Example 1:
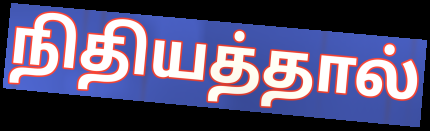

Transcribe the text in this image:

நிதியத்தால்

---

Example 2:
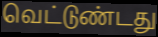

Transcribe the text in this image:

வெட்டுண்டது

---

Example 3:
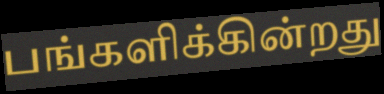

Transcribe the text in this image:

பங்களிக்கின்றது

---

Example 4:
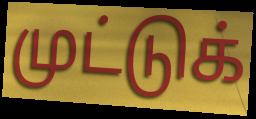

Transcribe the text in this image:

முட்டுக்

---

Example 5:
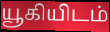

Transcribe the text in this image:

யூகியிடம்